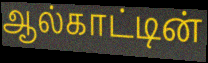
ஆல்காட்டின்